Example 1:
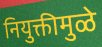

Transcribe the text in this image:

नियुक्तीमुळे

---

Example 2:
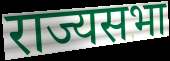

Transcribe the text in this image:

राज्यसभा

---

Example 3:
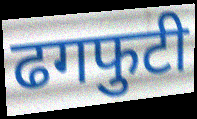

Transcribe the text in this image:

ढगफुटी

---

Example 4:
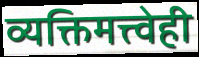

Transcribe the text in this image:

व्यक्तिमत्त्वेही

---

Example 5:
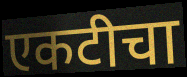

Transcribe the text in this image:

एकटीचा